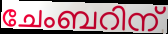
ചേംബറിന്